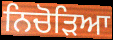
ਨਿਚੋੜਿਆ